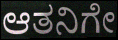
ಆತನಿಗೇ